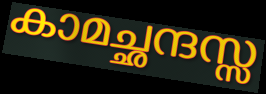
കാമച്ഛന്ദസ്സ